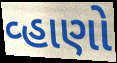
વ્હાણો